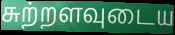
சுற்றளவுடைய